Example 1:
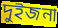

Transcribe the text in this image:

দুইজনা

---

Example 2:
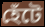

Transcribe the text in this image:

হেঁটে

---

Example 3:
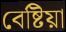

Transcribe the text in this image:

বেষ্টিয়া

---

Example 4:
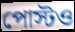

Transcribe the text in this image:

পোস্টও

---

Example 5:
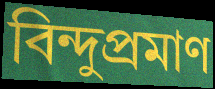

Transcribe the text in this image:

বিন্দুপ্রমাণ